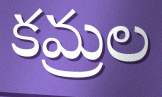
కమ్రల